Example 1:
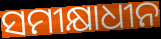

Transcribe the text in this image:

ସମୀକ୍ଷାଧୀନ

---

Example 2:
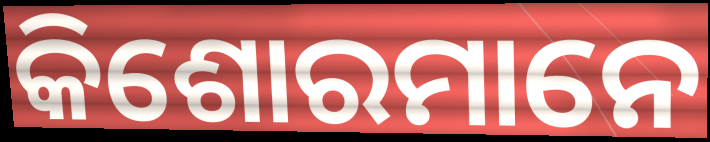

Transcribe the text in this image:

କିଶୋରମାନେ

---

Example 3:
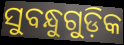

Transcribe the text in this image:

ସୁବନ୍ଧୁଗୁଡ଼ିକ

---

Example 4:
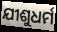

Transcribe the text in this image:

ଯୀଶୁଧର୍ମ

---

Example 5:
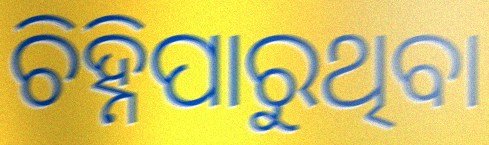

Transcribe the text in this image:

ଚିହ୍ନିପାରୁଥିବା